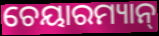
ଚେୟାରମ୍ୟାନ୍